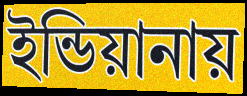
ইন্ডিয়ানায়